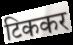
टिककर